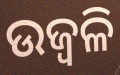
ଉଜ୍ୱଳି